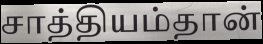
சாத்தியம்தான்